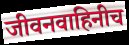
जीवनवाहिनीच